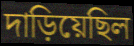
দাড়িয়েছিল